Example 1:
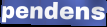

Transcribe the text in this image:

pendens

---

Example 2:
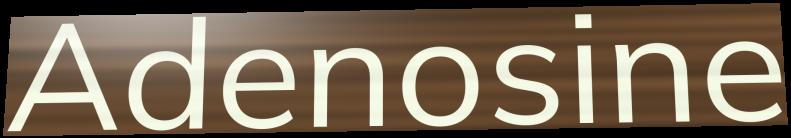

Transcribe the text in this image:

Adenosine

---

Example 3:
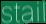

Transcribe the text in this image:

stail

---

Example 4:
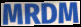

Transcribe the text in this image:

MRDM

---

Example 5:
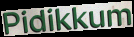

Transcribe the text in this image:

Pidikkum